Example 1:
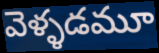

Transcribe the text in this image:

వెళ్ళడమూ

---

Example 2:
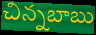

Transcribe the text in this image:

చిన్నబాబు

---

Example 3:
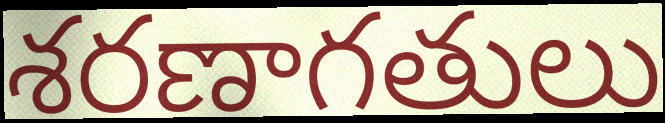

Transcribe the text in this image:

శరణాగతులు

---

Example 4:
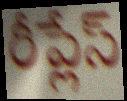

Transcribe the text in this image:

రీప్లేస్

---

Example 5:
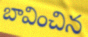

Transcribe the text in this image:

బావించిన